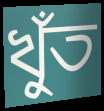
খুঁত